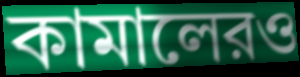
কামালেরও